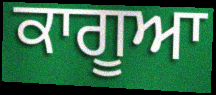
ਕਾਗੂਆ